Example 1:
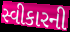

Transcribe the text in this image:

સ્વીકારની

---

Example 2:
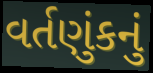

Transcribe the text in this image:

વર્તણુંકનું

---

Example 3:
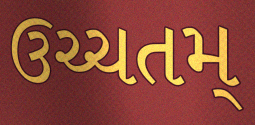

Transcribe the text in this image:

ઉચ્ચતમ્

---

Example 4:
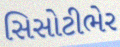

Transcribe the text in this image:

સિસોટીભેર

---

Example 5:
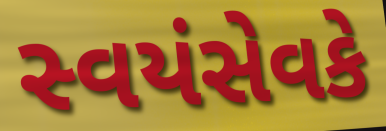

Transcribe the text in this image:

સ્વયંસેવકે